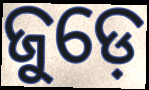
ଜୁଡ଼େ